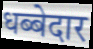
धब्बेदार